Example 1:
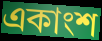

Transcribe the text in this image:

একাংশ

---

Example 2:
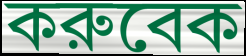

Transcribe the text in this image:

করুবেক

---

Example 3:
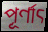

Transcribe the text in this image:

পূর্ণাৎ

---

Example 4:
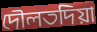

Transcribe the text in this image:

দৌলতদিয়া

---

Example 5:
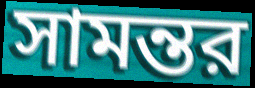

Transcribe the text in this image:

সামন্তর